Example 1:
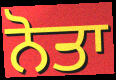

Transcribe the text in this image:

ਨੋਤਾ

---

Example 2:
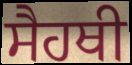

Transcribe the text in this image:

ਸੈਹਥੀ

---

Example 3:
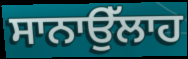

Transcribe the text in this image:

ਸਾਨਾਉੱਲਾਹ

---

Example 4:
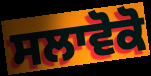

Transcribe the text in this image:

ਸਲਾਵੋਕੋ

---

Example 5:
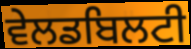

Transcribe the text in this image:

ਵੇਲਡਬਿਲਟੀ